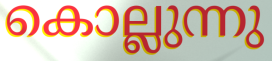
കൊല്ലുന്നു